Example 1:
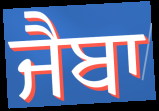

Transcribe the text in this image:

ਜੈਬਾ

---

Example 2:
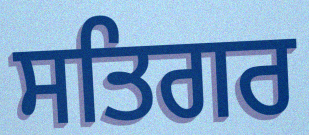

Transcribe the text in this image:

ਸਤਿਗਰ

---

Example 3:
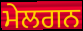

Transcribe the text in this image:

ਮੇਲਗਨ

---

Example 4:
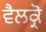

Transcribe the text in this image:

ਵੈਲਕ੍ਰੋ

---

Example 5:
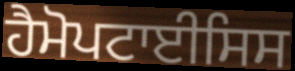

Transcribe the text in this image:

ਹੈਮੋਪਟਾਈਸਿਸ